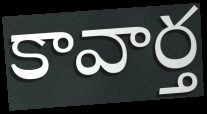
కావార్త